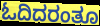
ಓದಿದರಂತೂ